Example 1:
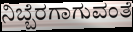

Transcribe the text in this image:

ನಿಬ್ಬೆರಗಾಗುವಂತೆ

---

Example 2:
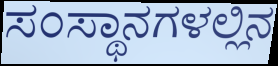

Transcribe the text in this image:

ಸಂಸ್ಥಾನಗಳಲ್ಲಿನ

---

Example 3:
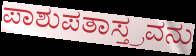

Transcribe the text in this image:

ಪಾಶುಪತಾಸ್ತ್ರವನು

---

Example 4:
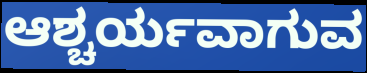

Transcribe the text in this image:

ಆಶ್ಚರ್ಯವಾಗುವ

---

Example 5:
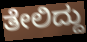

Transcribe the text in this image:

ತೇಲಿದ್ದು